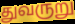
துவருறு